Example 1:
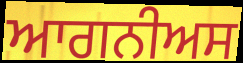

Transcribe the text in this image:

ਆਗਨੀਅਸ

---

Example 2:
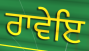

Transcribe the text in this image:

ਰਾਵੇਇ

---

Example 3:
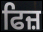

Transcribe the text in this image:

ਫਿਜ਼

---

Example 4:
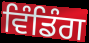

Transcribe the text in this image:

ਵਿੰਡਿੰਗ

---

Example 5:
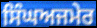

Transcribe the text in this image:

ਸਿੰਘਅਜਮੇਰ